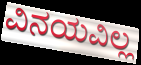
ವಿನಯವಿಲ್ಲ